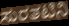
ಸುರತಟಿನಿ